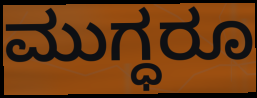
ಮುಗ್ಧರೂ